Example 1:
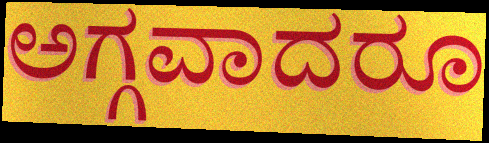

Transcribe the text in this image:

ಅಗ್ಗವಾದರೂ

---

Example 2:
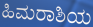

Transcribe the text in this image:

ಹಿಮರಾಶಿಯ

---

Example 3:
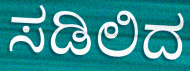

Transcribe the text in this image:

ಸಡಿಲಿದ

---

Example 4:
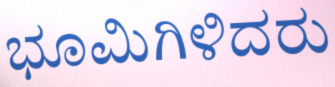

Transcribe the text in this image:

ಭೂಮಿಗಿಳಿದರು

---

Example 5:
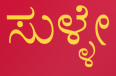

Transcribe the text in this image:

ಸುಳ್ಳೇ